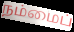
நம்மைப்